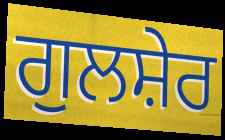
ਗੁਲਸ਼ੇਰ